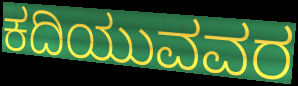
ಕದಿಯುವವರ